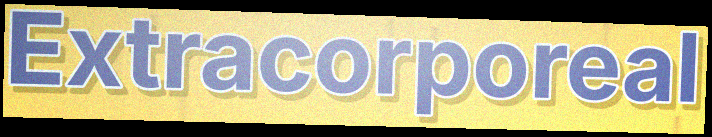
Extracorporeal